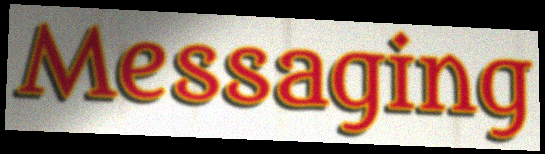
Messaging